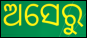
ଅସେରୁ